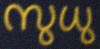
സുധു